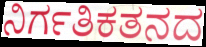
ನಿರ್ಗತಿಕತನದ